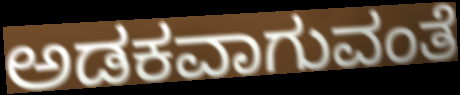
ಅಡಕವಾಗುವಂತೆ